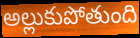
అల్లుకుపోతుంది